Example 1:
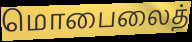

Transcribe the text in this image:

மொபைலைத்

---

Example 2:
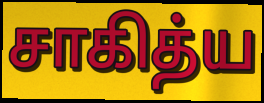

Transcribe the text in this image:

சாகித்ய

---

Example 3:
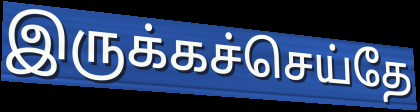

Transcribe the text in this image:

இருக்கச்செய்தே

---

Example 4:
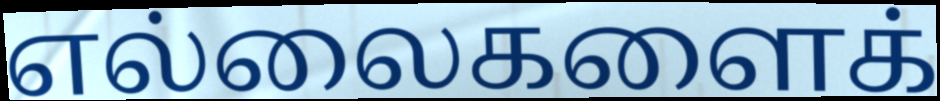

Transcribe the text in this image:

எல்லைகளைக்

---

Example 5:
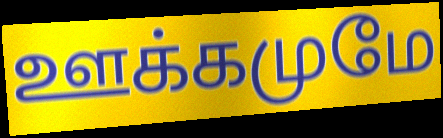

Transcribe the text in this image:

ஊக்கமுமே